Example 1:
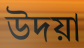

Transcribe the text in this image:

উদয়া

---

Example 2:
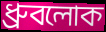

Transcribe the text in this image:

ধ্রুবলোক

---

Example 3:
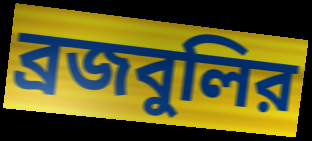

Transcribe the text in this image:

ব্রজবুলির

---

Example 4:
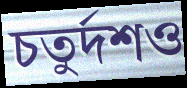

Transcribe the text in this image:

চতুর্দশও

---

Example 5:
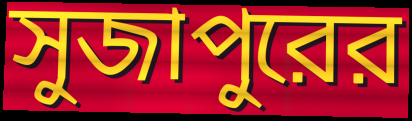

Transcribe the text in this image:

সুজাপুরের